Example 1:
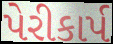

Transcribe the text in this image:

પેરીકાર્પ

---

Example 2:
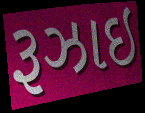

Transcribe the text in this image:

રૂઝાઇ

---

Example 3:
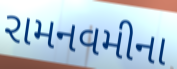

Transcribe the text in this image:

રામનવમીના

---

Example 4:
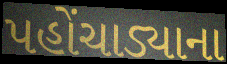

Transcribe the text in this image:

પહોંચાડ્યાના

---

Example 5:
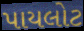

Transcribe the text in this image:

પાયલોટ